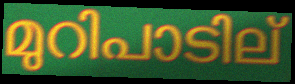
മുറിപാടില്